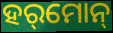
ହର୍‌ମୋନ୍